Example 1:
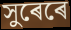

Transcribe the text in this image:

সুৰেৰে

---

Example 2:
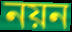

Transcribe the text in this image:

নয়ন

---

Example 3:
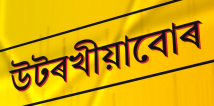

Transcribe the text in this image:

উটৰখীয়াবোৰ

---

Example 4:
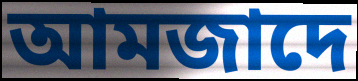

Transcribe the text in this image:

আমজাদে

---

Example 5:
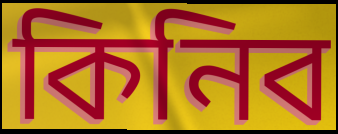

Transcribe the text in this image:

কিনিব